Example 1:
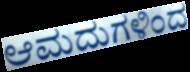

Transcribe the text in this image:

ಆಮದುಗಳಿಂದ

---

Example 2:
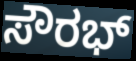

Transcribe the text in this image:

ಸೌರಭ್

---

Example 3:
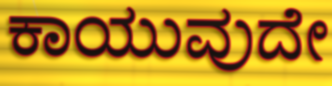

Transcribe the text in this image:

ಕಾಯುವುದೇ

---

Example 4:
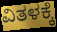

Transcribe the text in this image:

ವಿತಳಕ್ಕೆ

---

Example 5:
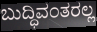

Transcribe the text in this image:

ಬುದ್ಧಿವಂತರಲ್ಲ